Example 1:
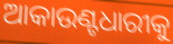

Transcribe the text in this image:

ଆକାଉଣ୍ଟଧାରୀକୁ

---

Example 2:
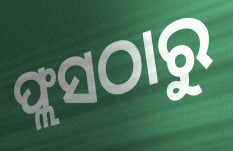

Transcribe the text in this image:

ଫ୍ଲସଠାରୁ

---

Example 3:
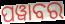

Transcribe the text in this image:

ପୱାବର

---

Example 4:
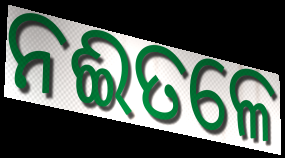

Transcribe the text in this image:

ନଈତଳେ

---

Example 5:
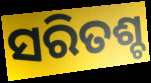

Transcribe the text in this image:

ସରିତଶ୍ଚ